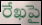
రేఖపై